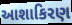
આશાકિરણ